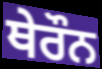
ਥੇਰੌਨ